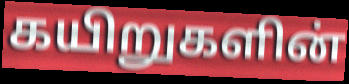
கயிறுகளின்